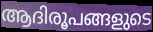
ആദിരൂപങ്ങളുടെ